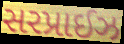
સરપ્રાઈઝ